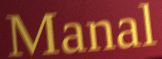
Manal